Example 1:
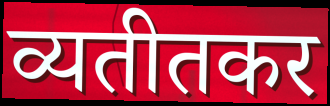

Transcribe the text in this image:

व्यतीतकर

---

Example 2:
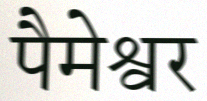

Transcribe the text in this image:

पैमेश्वर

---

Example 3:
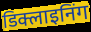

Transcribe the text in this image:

डिक्लाइनिंग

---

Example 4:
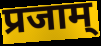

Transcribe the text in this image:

प्रजाम्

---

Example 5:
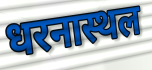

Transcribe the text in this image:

धरनास्थल